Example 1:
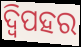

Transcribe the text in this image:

ଦ୍ୱିପହର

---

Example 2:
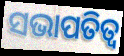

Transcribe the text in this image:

ସଭାପତିତ୍ଵ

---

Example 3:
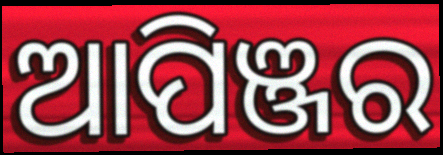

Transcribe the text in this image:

ଆପିଞ୍ଜର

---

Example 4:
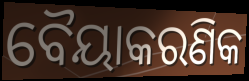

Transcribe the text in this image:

ବୈୟାକରଣିକ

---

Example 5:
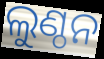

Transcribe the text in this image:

ଲୁଣ୍ଠନ